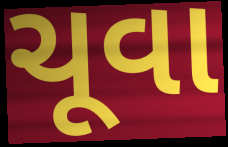
ચૂવા